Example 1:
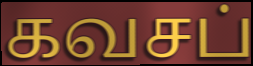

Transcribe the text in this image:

கவசப்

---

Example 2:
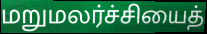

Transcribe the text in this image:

மறுமலர்ச்சியைத்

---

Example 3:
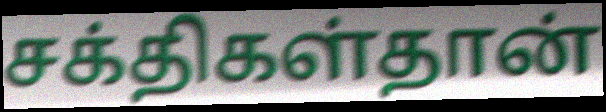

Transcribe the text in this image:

சக்திகள்தான்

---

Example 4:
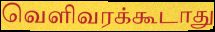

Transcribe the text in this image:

வெளிவரக்கூடாது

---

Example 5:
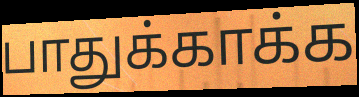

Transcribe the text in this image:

பாதுக்காக்க